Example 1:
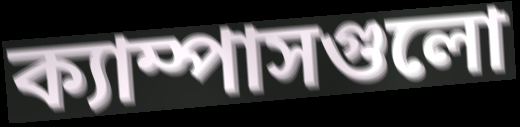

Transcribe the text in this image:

ক্যাম্পাসগুলো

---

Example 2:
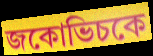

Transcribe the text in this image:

জকোভিচকে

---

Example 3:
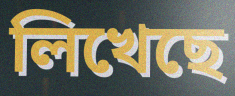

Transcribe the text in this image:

লিখেছে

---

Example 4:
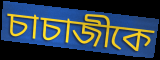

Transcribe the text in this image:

চাচাজীকে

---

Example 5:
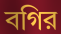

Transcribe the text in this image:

বগির